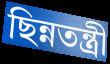
ছিন্নতন্ত্রী